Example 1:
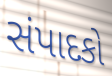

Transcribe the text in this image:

સંપાદકો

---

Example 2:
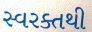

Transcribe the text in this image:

સ્વરક્તથી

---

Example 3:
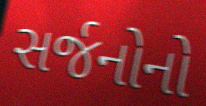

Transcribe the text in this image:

સર્જનોનો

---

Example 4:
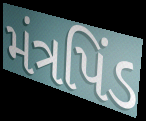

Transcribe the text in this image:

મંત્રપિંડ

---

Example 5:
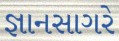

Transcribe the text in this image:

જ્ઞાનસાગરે